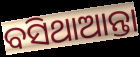
ବସିଥାଆନ୍ତା